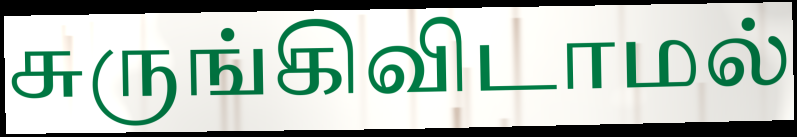
சுருங்கிவிடாமல்